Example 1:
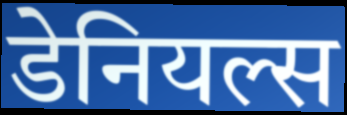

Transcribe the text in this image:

डेनियल्स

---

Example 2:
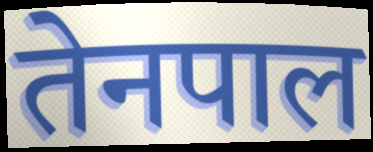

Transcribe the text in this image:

तेनपाल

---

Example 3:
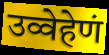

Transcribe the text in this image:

उव्वेहेणं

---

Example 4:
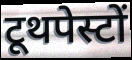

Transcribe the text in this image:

टूथपेस्टों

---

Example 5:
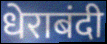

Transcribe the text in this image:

धेराबंदी